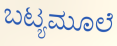
ಬಟ್ಯಮೂಲೆ